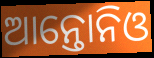
ଆନ୍ତୋନିଓ